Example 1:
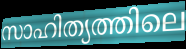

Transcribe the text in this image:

സാഹിത്യത്തിലെ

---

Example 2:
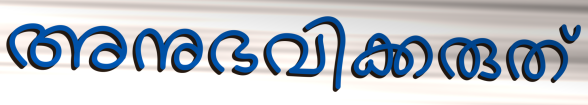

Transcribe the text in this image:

അനുഭവിക്കരുത്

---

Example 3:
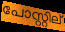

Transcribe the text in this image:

പോസ്റ്റില്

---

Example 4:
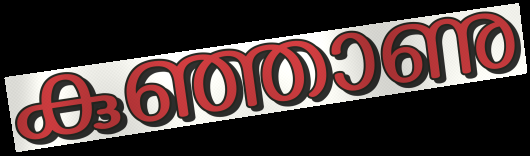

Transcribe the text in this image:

കുഞ്ഞാണു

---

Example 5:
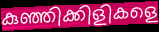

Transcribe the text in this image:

കുഞ്ഞിക്കിളികളെ